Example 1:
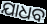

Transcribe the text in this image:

ଯାଧବ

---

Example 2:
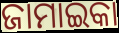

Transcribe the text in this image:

ଜାମାଇକା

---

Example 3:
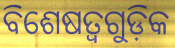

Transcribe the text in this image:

ବିଶେଷତ୍ୱଗୁଡ଼ିକ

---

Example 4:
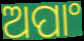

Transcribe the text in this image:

ଅପାଂ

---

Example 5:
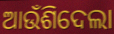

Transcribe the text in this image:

ଆଉଁଶିଦେଲା